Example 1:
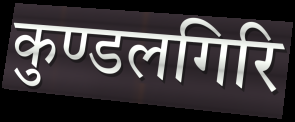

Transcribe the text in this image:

कुण्डलगिरि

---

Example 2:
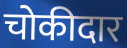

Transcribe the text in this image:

चोकीदार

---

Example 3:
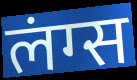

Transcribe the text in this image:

लंग्स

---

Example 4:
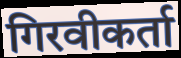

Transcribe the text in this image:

गिरवीकर्ता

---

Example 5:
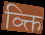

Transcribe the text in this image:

व्क्ति